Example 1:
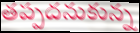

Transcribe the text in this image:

తప్పదనుకున్న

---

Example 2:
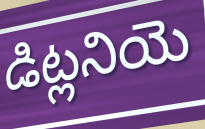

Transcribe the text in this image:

డిట్లనియె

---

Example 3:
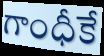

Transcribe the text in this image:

గాంధీకే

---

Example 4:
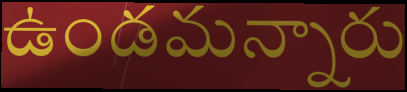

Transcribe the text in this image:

ఉండమన్నారు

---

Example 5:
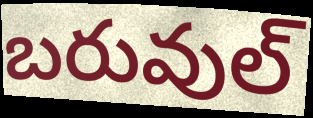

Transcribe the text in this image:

బరువుల్